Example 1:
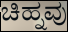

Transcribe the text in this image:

ಚಿಹ್ನವು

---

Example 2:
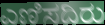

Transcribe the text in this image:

ಎಣಿಸದಿರು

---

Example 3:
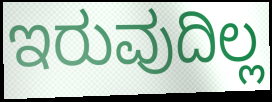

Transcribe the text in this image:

ಇರುವುದಿಲ್ಲ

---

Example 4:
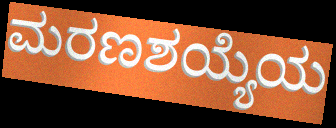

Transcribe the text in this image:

ಮರಣಶಯ್ಯೆಯ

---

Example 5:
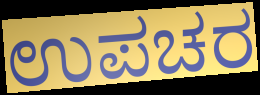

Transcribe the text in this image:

ಉಪಚರ